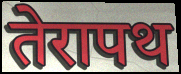
तेरापथ